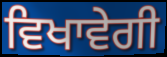
ਵਿਖਾਵੇਗੀ